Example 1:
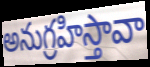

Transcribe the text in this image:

అనుగ్రహిస్తావా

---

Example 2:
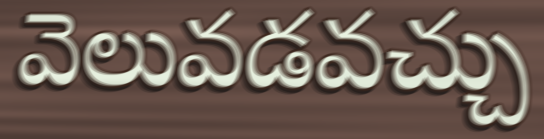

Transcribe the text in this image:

వెలువడవచ్చు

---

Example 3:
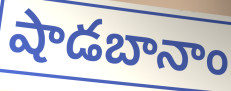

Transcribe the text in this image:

షాడబానాం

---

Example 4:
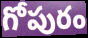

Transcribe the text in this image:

గోపురం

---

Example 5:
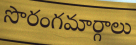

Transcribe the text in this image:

సొరంగమార్గాలు